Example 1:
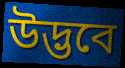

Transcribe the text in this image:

উদ্ভবে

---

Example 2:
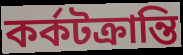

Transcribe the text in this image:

কর্কটক্রান্তি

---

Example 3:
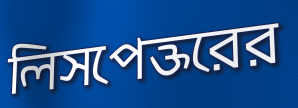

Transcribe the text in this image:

লিসপেক্তরের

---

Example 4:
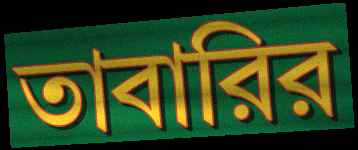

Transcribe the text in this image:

তাবারির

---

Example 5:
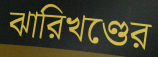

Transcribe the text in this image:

ঝারিখণ্ডের